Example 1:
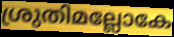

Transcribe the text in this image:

ശ്രുതിമല്ലോകേ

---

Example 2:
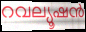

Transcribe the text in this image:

റവല്യൂഷൻ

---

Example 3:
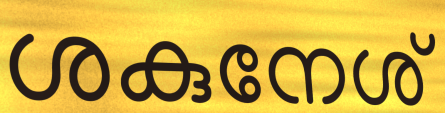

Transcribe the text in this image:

ശകുനേശ്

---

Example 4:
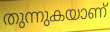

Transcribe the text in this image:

തുന്നുകയാണ്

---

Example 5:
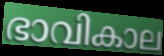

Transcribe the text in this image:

ഭാവികാല